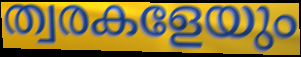
ത്വരകളേയും